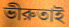
ভীরুতাই